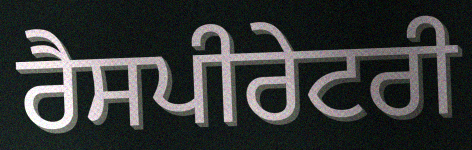
ਰੈਸਪੀਰੇਟਰੀ